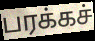
பரக்கச்